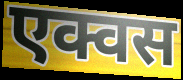
एक्वस